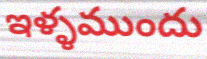
ఇళ్ళముందు